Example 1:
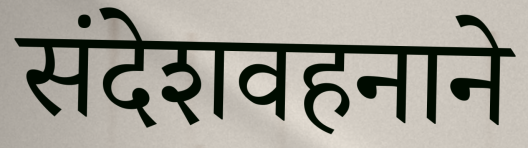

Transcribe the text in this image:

संदेशवहनाने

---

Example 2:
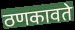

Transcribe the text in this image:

ठणकावते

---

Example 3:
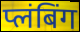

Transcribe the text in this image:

प्लंबिंग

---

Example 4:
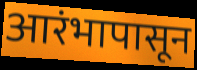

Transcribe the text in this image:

आरंभापासून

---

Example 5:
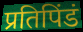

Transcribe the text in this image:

प्रतिपिंडं